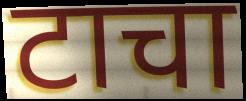
टाचा